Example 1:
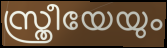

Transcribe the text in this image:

സ്ത്രീയേയും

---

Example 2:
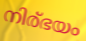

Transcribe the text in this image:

നിര്ഭയം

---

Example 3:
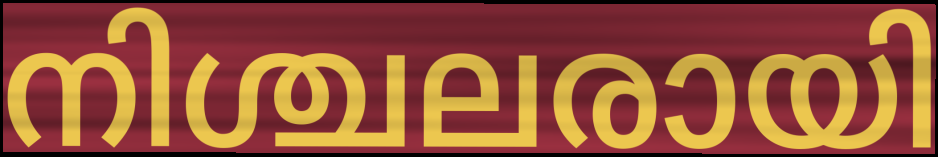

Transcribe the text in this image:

നിശ്ചലരായി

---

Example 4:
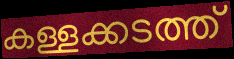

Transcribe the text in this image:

കള്ളക്കടത്ത്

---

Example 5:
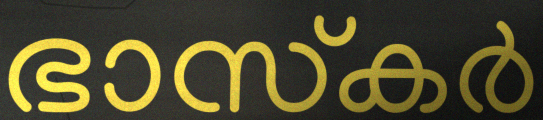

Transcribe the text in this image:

ഭാസ്‌കർ